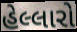
હેલ્લારો